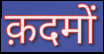
क़दमों